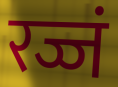
रज्जं